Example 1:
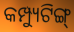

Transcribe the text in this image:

କମ୍ପ୍ୟୁଟିଙ୍ଗ୍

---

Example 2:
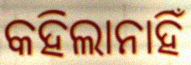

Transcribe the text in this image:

କହିଲାନାହିଁ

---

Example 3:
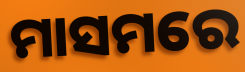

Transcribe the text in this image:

ମାସମରେ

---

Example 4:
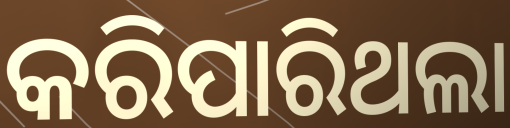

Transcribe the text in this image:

କରିପାରିଥଲା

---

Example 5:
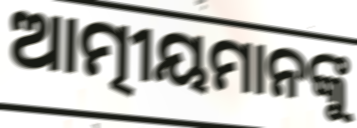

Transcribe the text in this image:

ଆତ୍ମୀୟମାନଙ୍କୁ